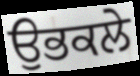
ਉਭਕਲੇ